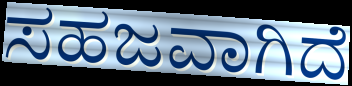
ಸಹಜವಾಗಿದೆ